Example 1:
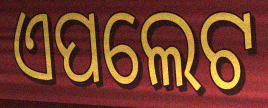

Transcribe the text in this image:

ଏପଲେଟ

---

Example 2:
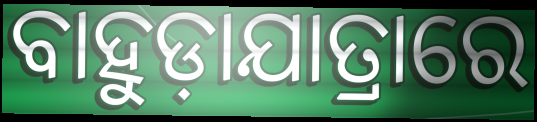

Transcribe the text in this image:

ବାହୁଡ଼ାଯାତ୍ରାରେ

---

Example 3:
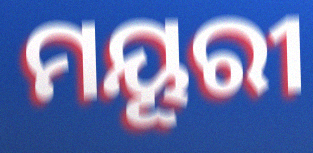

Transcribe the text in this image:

ମୟୂରୀ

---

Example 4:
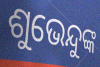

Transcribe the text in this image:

ଶୁଭେନ୍ଦୁଙ୍କ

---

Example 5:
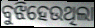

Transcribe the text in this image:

ବୁଝିହେଉଥିଲା